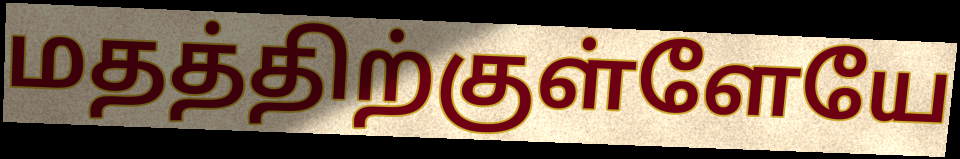
மதத்திற்குள்ளேயே